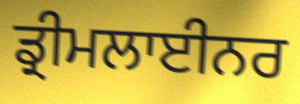
ਡ੍ਰੀਮਲਾਈਨਰ